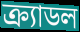
ক্র্যাডল